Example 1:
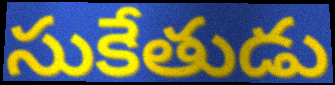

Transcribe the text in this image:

సుకేతుడు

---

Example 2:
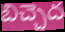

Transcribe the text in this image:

బిచ్చెద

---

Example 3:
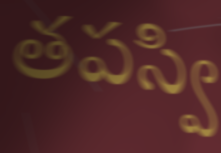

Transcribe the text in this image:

తపస్వి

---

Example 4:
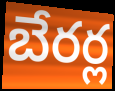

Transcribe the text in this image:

బేరర్ల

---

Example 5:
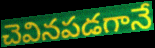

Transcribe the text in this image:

చెవినపడగానే